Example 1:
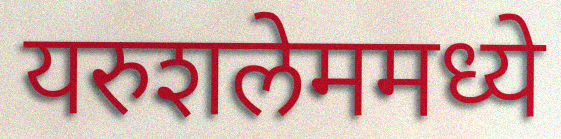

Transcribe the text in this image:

यरुशलेममध्ये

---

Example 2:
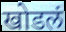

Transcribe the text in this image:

खोडलं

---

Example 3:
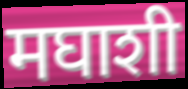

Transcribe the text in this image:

मघाशी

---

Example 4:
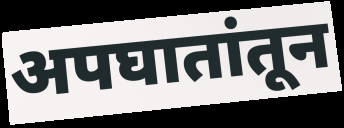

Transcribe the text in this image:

अपघातांतून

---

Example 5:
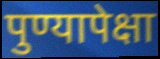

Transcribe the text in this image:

पुण्यापेक्षा